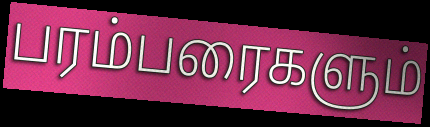
பரம்பரைகளும்